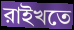
রাইখতে